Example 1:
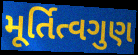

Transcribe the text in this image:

મૂર્તિત્વગુણ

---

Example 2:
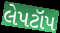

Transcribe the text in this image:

લેપટૉપ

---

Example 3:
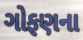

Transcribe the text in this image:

ગોફણના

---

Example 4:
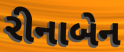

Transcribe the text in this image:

રીનાબેન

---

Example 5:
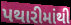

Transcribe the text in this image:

પથારીમાંથી